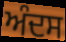
ਅੰਦਸ